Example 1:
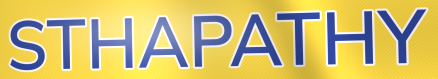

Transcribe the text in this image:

STHAPATHY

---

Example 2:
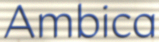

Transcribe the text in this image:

Ambica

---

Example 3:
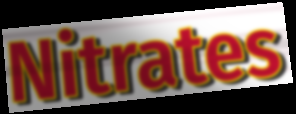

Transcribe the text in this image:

Nitrates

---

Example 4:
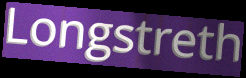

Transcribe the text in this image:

Longstreth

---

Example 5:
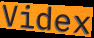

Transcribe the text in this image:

Videx